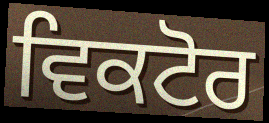
ਵਿਕਟੋਰ